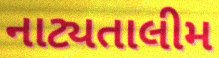
નાટ્યતાલીમ